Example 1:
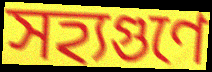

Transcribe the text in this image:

সহ্যগুণে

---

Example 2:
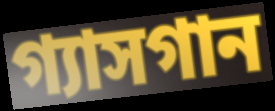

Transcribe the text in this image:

গ্যাসগান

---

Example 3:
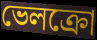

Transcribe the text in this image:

ভেলক্রো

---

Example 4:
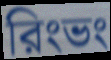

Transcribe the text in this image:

রিংভং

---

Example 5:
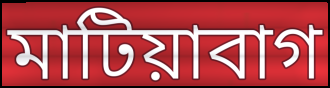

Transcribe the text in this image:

মাটিয়াবাগ